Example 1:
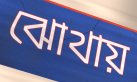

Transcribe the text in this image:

ঝোথায়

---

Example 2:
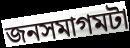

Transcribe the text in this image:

জনসমাগমটা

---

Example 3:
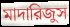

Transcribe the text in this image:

মাদারিজুস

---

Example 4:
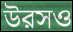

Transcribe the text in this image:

উরসও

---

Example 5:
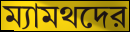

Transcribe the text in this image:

ম্যামথদের